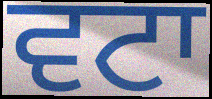
ਵਟਾ